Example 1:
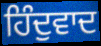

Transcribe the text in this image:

ਹਿੰਦੁਵਾਦ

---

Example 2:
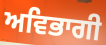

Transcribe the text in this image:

ਅਵਿਭਾਗੀ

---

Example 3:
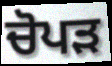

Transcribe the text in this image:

ਚੋਪੜ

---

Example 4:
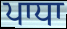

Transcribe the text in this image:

ਪਾਧਾ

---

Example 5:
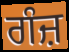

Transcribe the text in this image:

ਗੰਜ਼